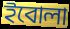
ইবোলা